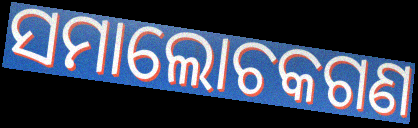
ସମାଲୋଚକଗଣ